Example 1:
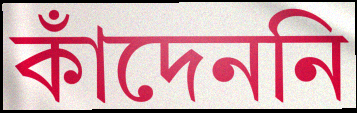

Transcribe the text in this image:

কাঁদেননি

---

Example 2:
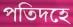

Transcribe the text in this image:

পতিদহে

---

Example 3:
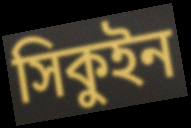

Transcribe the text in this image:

সিকুইন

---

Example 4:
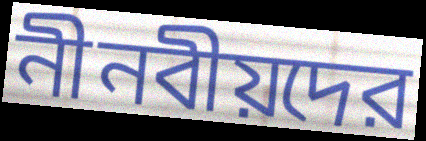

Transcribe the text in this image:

নীনবীয়দের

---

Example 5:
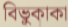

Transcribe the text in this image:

বিভুকাকা